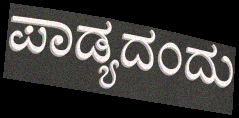
ಪಾಡ್ಯದಂದು